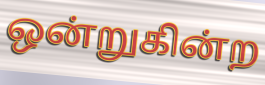
ஒன்றுகின்ற